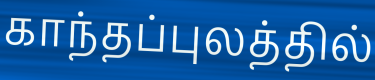
காந்தப்புலத்தில்